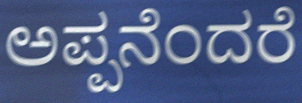
ಅಪ್ಪನೆಂದರೆ